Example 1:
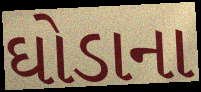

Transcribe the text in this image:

ઘોડાના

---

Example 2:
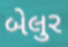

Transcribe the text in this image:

બેલુર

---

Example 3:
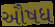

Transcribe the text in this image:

ઔષધ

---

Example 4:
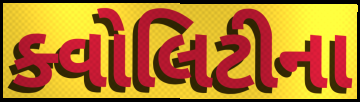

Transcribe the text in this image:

ક્વોલિટીના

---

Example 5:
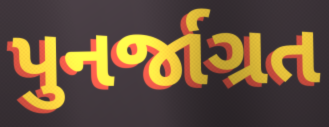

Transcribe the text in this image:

પુનર્જાગ્રત